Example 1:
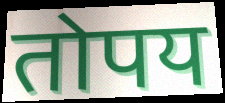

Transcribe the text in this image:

तोपय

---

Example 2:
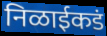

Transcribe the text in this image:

निळाईकडं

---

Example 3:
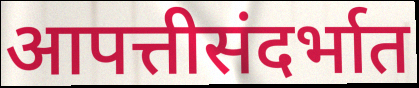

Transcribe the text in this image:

आपत्तीसंदर्भात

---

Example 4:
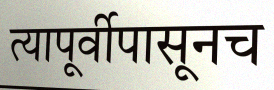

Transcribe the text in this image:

त्यापूर्वीपासूनच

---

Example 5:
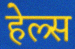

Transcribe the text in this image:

हेल्स